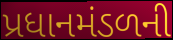
પ્રધાનમંડળની